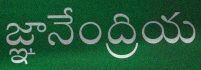
జ్ఞానేంద్రియ